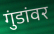
गुंडांवर